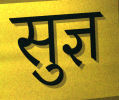
सुज्ञ